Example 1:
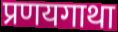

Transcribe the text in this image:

प्रणयगाथा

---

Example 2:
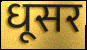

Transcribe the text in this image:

धूसर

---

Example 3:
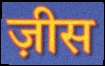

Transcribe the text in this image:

ज़ीस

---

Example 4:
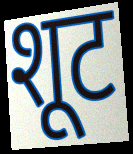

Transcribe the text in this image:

शूट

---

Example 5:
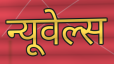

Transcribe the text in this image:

न्यूवेल्स